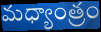
మధ్యాంత్రం